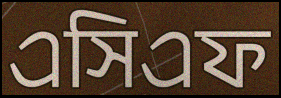
এসিএফ